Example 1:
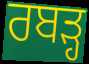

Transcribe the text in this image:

ਰਬੜ੍ਹ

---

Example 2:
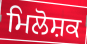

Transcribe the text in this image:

ਮਿਲੋਸ਼ਕ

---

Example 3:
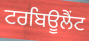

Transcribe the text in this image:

ਟਰਬਿਊਲੈਂਟ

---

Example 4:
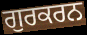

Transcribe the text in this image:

ਗੁਰਕਰਨ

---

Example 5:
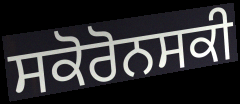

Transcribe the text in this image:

ਸਕੋਰੋਨਸਕੀ